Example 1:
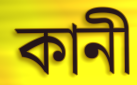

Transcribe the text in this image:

কানী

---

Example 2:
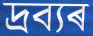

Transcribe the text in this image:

দ্ৰব্যৰ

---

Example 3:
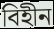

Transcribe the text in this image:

বিহীন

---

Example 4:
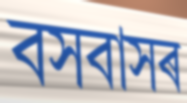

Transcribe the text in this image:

বসবাসৰ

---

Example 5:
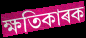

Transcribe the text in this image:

ক্ষতিকাৰক